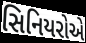
સિનિયરોએ